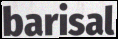
barisal